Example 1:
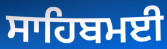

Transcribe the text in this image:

ਸਾਹਿਬਮਈ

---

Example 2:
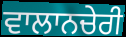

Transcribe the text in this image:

ਵਾਲਾਨਚੇਰੀ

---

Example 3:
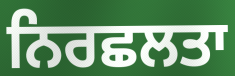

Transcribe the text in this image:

ਨਿਰਛਲਤਾ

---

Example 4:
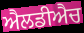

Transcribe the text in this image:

ਐਲਡੀਐਚ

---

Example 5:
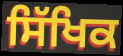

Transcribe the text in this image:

ਸਿੱਖਿਕ